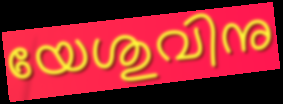
യേശുവിനു